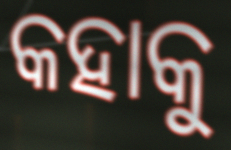
କହାକୁ